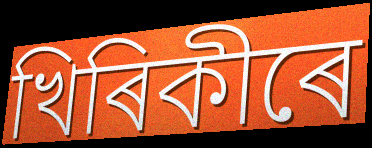
খিৰিকীৰে